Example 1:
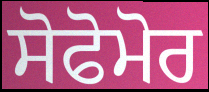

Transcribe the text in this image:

ਸੋਫੋਮੋਰ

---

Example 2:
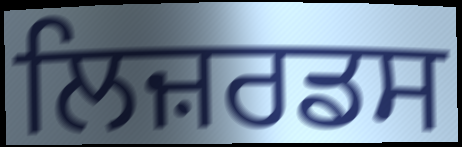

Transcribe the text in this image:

ਲਿਜ਼ਰਡਸ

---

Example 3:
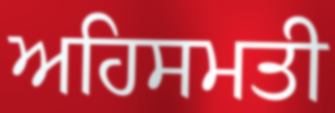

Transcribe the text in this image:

ਅਹਿਸਮਤੀ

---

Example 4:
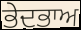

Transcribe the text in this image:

ਭੇਦਭਾਅ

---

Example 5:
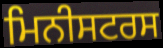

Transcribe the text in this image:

ਮਿਨੀਸਟਰਸ